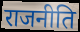
राजनीति